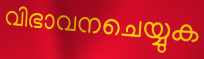
വിഭാവനചെയ്യുക